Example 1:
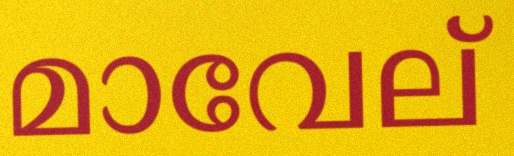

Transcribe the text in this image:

മാവേല്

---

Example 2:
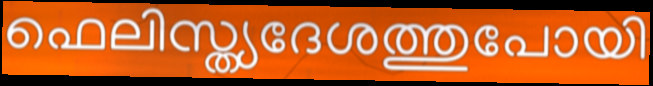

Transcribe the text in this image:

ഫെലിസ്ത്യദേശത്തുപോയി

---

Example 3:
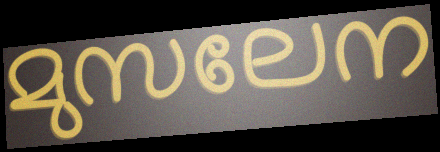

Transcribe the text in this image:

മുസലേന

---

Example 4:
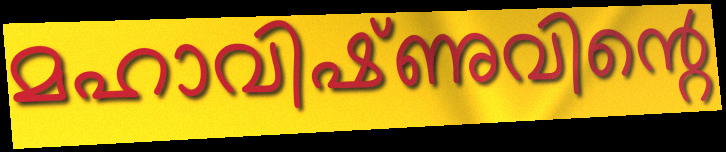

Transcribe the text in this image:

മഹാവിഷ്‌ണുവിന്റെ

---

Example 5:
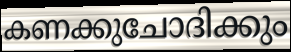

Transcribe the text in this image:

കണക്കുചോദിക്കും